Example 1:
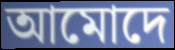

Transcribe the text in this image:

আমোদে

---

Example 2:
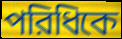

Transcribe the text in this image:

পরিধিকে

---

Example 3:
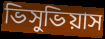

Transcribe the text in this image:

ভিসুভিয়াস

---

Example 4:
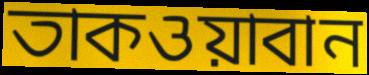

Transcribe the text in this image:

তাকওয়াবান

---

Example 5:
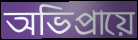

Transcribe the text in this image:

অভিপ্রায়ে